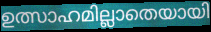
ഉത്സാഹമില്ലാതെയായി